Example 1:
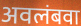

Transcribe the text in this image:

अवलंबवा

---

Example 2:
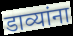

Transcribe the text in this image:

डाव्यांना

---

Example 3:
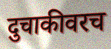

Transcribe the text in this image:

दुचाकीवरच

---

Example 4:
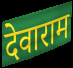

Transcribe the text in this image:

देवाराम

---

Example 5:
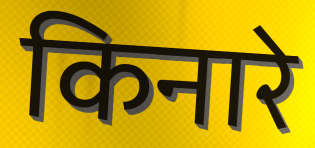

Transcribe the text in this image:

किनारे